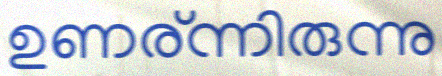
ഉണര്ന്നിരുന്നു